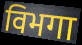
विभगा